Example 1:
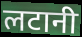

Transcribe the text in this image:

लटानी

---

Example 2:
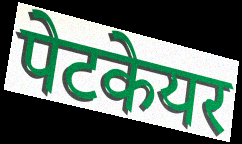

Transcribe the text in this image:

पेटकेयर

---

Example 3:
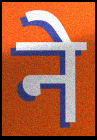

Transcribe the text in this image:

ने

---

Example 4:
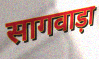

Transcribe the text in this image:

सागवाड़ा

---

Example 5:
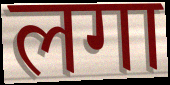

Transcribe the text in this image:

लगा